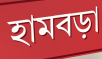
হামবড়া